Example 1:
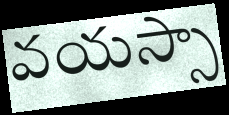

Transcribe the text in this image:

వయస్సా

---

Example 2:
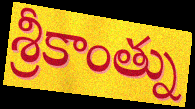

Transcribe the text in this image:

శ్రీకాంత్ను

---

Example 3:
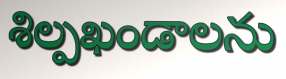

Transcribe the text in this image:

శిల్పఖండాలను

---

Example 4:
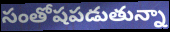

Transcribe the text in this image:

సంతోషపడుతున్నా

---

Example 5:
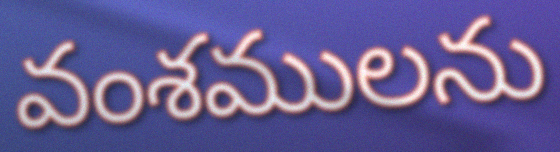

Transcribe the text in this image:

వంశములను